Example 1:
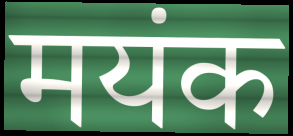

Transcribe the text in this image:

मयंक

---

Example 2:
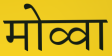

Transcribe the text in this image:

मोव्वा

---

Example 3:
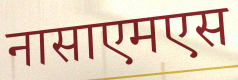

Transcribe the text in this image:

नासाएमएस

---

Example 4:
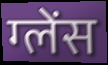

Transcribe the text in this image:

ग्लेंस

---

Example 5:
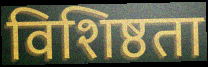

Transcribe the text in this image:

विशिष्ठता